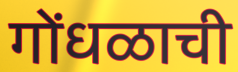
गोंधळाची